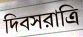
দিবসরাত্রি